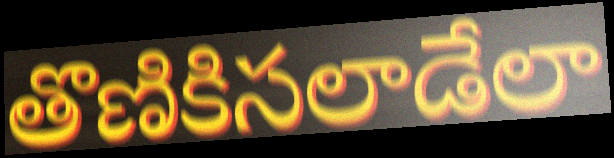
తొణికిసలాడేలా